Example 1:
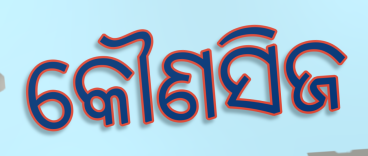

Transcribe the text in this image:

କୌଣସିଜ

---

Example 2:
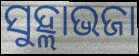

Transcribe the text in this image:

ସୁହ୍ଲାଭଜା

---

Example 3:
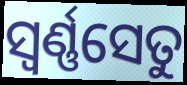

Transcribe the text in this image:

ସ୍ଵର୍ଣ୍ଣସେତୁ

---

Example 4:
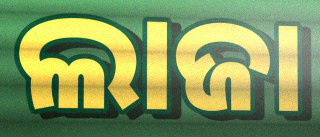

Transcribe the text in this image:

ଲାଜା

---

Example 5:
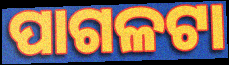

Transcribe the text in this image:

ପାଗଳଟା